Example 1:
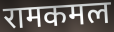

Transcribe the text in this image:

रामकमल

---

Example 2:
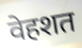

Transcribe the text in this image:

वेहशत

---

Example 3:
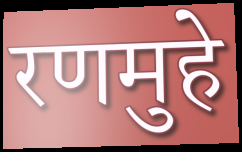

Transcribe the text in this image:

रणमुहे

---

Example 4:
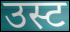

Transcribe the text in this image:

उस्ट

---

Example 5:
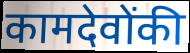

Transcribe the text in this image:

कामदेवोंकी